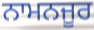
ਨਾਮਨਜੂਰ